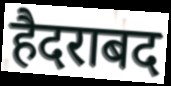
हैदराबद